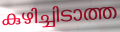
കുഴിച്ചിടാത്ത